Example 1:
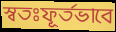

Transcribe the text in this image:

স্বতঃফূর্তভাবে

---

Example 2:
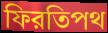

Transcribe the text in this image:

ফিরতিপথ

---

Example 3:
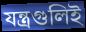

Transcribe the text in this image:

যন্ত্রগুলিই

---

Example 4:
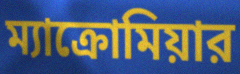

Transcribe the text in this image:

ম্যাক্রোমিয়ার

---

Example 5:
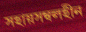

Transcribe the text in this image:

সহায়সম্বলহীন